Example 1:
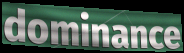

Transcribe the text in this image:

dominance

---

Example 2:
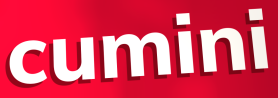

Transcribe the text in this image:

cumini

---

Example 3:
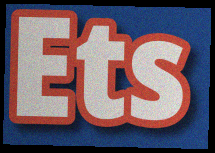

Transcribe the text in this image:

Ets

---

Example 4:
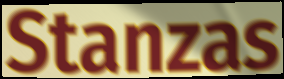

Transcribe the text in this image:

Stanzas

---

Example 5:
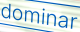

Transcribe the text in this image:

dominar